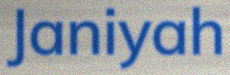
Janiyah